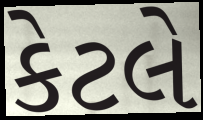
કેટલે